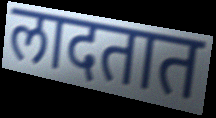
लादतात